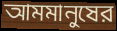
আমমানুষের